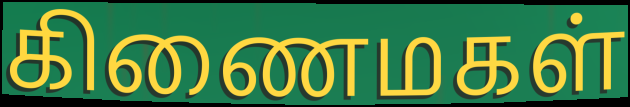
கிணைமகள்